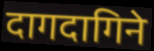
दागदागिने